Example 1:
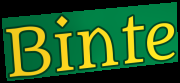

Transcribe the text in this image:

Binte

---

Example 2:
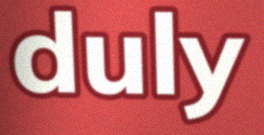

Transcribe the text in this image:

duly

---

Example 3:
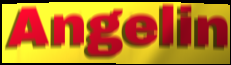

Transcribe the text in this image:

Angelin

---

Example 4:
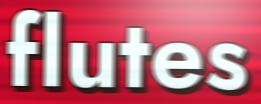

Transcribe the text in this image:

flutes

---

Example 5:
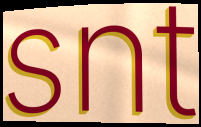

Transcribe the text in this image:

snt